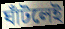
ঘাঁটলেই